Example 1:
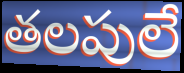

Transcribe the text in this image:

తలపులే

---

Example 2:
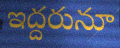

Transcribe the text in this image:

ఇద్దరునూ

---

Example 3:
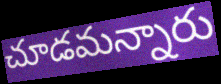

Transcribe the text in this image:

చూడమన్నారు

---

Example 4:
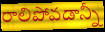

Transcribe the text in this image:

రాలిపోవడాన్నీ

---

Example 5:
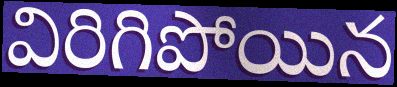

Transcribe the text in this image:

విరిగిపోయిన